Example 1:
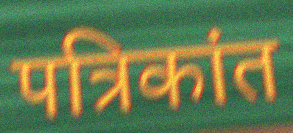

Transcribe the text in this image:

पत्रिकांत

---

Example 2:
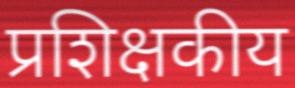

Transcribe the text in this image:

प्रशिक्षकीय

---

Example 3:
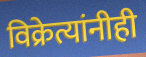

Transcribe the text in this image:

विक्रेत्यांनीही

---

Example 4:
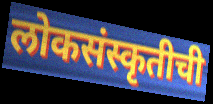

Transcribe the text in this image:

लोकसंस्कृतीची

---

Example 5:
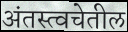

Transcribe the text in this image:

अंतस्त्वचेतील